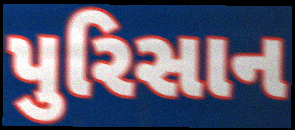
પુરિસાન